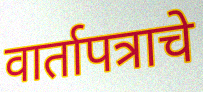
वार्तापत्राचे